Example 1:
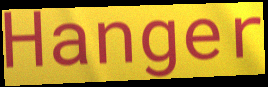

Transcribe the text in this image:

Hanger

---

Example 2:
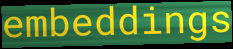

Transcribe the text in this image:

embeddings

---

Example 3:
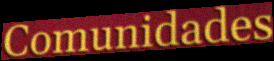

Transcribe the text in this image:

Comunidades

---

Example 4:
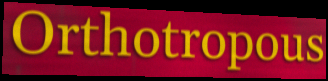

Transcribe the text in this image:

Orthotropous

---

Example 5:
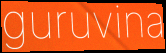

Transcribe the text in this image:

guruvina